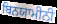
ਬਿਨਯਾਮੀਨੀ